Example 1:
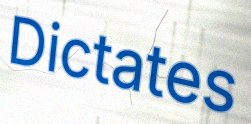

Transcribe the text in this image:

Dictates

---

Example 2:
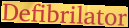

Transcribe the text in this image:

Defibrilator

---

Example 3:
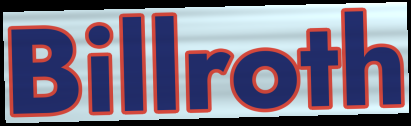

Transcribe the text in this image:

Billroth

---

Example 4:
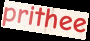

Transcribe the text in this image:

prithee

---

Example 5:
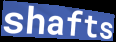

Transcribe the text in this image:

shafts